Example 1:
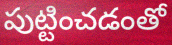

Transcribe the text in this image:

పుట్టించడంతో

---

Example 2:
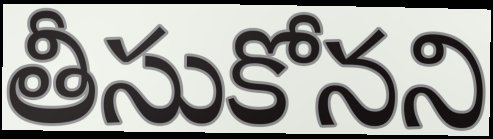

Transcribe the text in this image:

తీసుకోనని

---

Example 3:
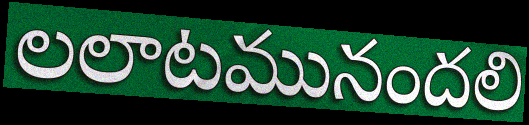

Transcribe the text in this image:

లలాటమునందలి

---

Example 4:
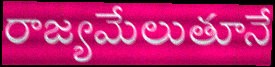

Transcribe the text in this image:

రాజ్యమేలుతూనే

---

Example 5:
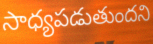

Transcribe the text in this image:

సాధ్యపడుతుందని